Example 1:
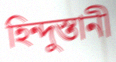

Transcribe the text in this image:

হিন্দুস্তানী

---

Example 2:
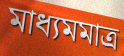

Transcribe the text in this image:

মাধ্যমমাত্র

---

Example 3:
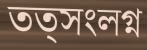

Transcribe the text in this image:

তত্সংলগ্ন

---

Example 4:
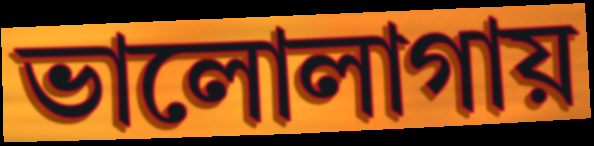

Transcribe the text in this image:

ভালোলাগায়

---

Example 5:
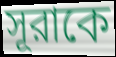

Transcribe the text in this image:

সূরাকে